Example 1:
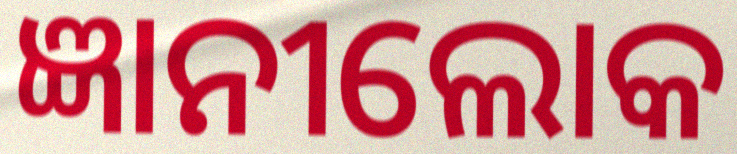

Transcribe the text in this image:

ଜ୍ଞାନୀଲୋକ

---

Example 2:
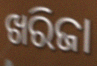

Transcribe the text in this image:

ଖରିଜା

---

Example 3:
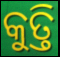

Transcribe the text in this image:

କୁତ୍ତି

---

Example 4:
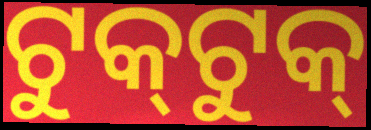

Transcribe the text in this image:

ଟୁକ୍‌ଟୁକ୍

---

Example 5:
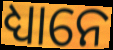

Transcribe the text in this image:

ଧ୍ୟାନେ